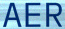
AER